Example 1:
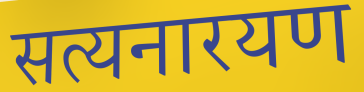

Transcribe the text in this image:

सत्यनारयण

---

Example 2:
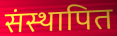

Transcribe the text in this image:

संस्थापित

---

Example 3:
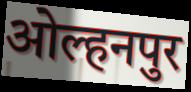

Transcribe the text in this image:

ओल्हनपुर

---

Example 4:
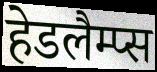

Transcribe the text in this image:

हेडलैम्प्स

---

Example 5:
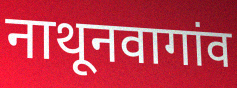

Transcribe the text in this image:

नाथूनवागांव